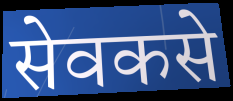
सेवकसे